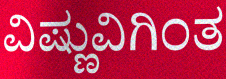
ವಿಷ್ಣುವಿಗಿಂತ